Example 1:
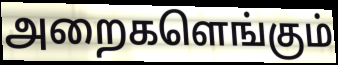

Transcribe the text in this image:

அறைகளெங்கும்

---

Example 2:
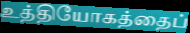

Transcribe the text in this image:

உத்தியோகத்தைப்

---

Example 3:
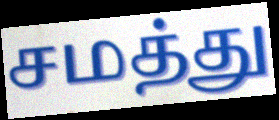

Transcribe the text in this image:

சமத்து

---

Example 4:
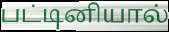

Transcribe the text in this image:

பட்டினியால்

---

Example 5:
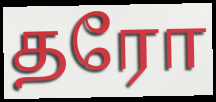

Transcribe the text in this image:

தரோ